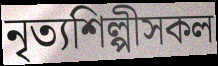
নৃত্যশিল্পীসকল